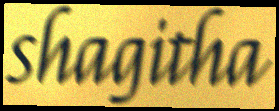
shagitha